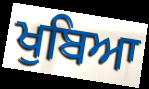
ਖੁਬਿਆ